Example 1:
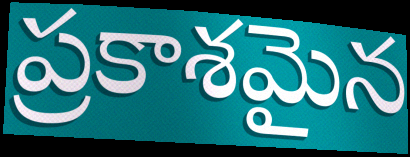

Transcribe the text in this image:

ప్రకాశమైన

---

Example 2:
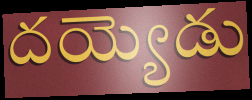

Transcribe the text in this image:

దయ్యెడు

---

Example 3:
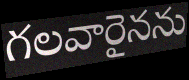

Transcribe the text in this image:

గలవారైనను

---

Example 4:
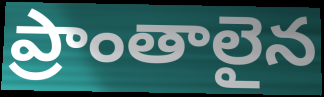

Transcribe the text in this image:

ప్రాంతాలైన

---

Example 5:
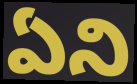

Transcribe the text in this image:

ఏని